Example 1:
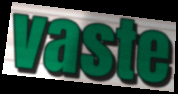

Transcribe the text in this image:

vaste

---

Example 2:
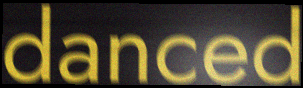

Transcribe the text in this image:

danced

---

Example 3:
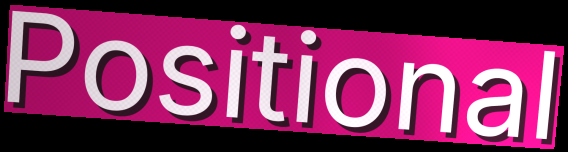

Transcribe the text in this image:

Positional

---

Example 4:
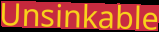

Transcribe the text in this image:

Unsinkable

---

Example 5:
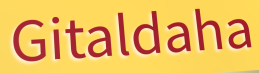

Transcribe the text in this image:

Gitaldaha